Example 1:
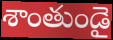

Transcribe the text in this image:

శాంతుండై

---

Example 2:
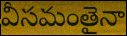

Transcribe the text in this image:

వీసమంతైనా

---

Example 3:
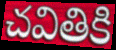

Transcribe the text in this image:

చవితికి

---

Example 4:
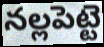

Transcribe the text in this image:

నల్లపెట్టె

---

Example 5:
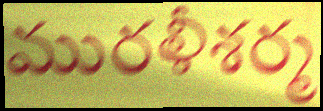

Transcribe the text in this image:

మురళీశర్మ